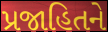
પ્રજાહિતને